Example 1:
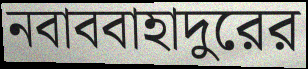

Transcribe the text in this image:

নবাববাহাদুরের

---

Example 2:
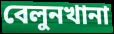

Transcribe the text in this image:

বেলুনখানা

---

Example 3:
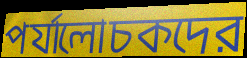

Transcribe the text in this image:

পর্যালোচকদের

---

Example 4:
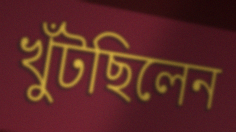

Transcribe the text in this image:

খুঁটছিলেন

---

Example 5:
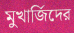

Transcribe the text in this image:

মুখার্জিদের